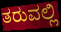
ತರುವಲ್ಲಿ